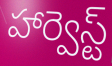
హార్వెస్ట్